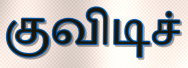
குவிடிச்